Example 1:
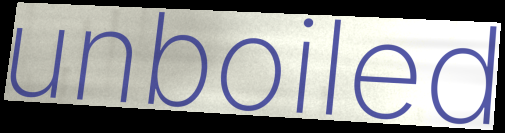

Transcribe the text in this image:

unboiled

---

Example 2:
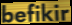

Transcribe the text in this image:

befikir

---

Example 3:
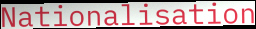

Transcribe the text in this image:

Nationalisation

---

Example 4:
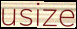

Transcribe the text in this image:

usize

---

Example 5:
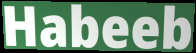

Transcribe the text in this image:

Habeeb